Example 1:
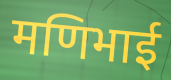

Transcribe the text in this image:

मणिभाई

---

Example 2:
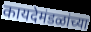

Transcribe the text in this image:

कायदेमंडळांच्या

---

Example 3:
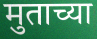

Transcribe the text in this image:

मुताच्या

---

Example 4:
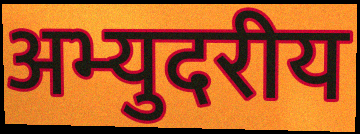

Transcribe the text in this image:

अभ्युदरीय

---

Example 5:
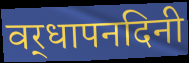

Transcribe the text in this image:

वर्धापनदिनी